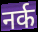
नर्क